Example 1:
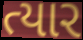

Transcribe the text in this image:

ત્યાર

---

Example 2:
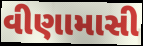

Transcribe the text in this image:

વીણામાસી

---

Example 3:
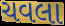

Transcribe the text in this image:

ચવલા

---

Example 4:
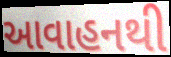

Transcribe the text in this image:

આવાહનથી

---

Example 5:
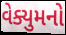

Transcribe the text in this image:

વેક્યુમનો